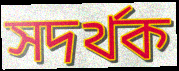
সদৰ্থক